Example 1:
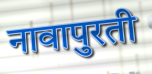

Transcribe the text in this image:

नावापुरती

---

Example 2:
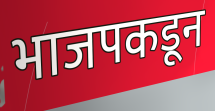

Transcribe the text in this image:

भाजपकडून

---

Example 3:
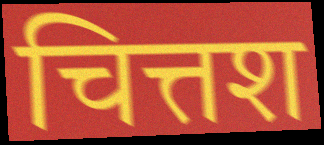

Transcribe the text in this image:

चित्तश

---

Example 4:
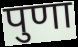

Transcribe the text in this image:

पुणा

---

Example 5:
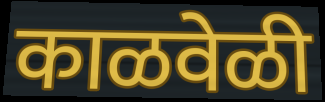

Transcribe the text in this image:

काळवेळी